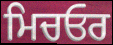
ਮਿਚਓਰ